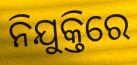
ନିଯୁକ୍ତିରେ